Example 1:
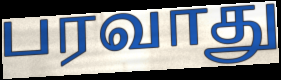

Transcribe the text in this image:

பரவாது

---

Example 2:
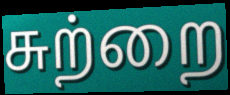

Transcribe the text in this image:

சுற்றை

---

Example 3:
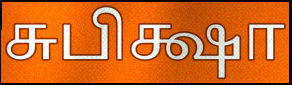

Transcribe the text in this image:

சுபிக்ஷா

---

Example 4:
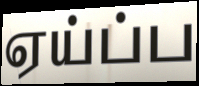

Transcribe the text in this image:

ஏய்ப்ப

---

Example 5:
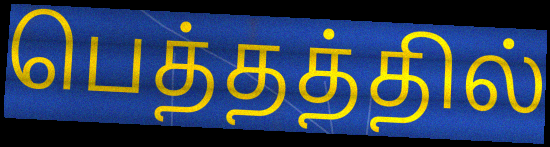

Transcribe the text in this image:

பெத்தத்தில்